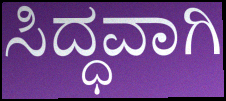
ಸಿದ್ಧವಾಗಿ